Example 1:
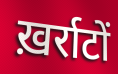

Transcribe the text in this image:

ख़र्राटों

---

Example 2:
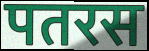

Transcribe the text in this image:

पतरस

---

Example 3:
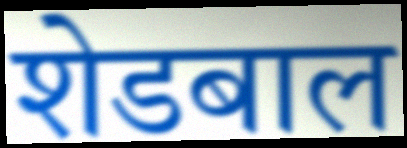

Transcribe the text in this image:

शेडबाल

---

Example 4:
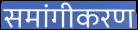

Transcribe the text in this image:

समांगीकरण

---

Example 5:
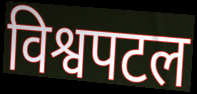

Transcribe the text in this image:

विश्वपटल